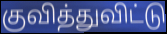
குவித்துவிட்டு